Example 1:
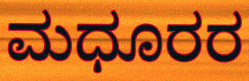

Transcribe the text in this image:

ಮಧೂರರ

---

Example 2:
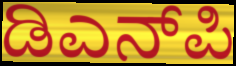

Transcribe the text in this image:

ಡಿಎನ್‌ಪಿ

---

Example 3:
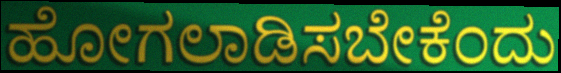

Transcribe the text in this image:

ಹೋಗಲಾಡಿಸಬೇಕೆಂದು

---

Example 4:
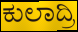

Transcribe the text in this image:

ಕುಲಾದ್ರಿ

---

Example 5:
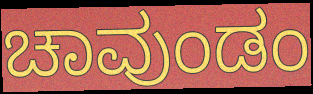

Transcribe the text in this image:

ಚಾವುಂಡಂ